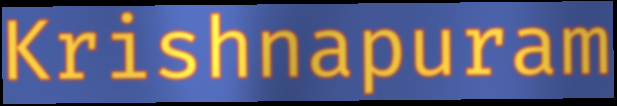
Krishnapuram